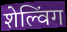
शेल्विंग